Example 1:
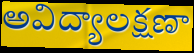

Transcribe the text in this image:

అవిద్యాలక్షణా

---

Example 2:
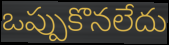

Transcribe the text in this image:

ఒప్పుకొనలేదు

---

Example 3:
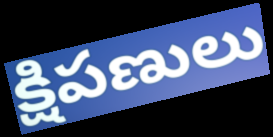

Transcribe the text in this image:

క్షిపణులు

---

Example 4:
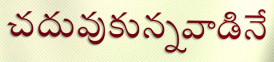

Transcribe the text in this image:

చదువుకున్నవాడినే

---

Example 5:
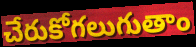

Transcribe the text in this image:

చేరుకోగలుగుతాం